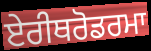
ਏਰੀਥਰੋਡਰਮਾ